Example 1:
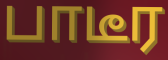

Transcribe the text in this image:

பாடீர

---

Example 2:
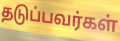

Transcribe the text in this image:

தடுப்பவர்கள்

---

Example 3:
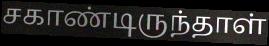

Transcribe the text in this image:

சகாண்டிருந்தாள்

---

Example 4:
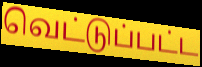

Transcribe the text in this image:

வெட்டுப்பட்ட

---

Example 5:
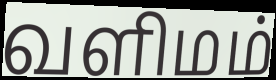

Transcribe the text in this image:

வளிமம்